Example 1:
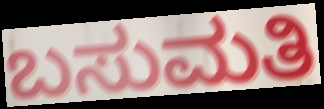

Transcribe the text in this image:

ಬಸುಮತಿ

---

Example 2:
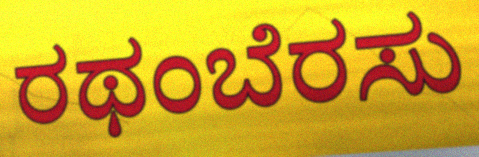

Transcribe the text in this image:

ರಥಂಬೆರಸು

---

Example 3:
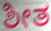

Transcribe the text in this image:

ಶೀತ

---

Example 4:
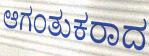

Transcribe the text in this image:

ಆಗಂತುಕರಾದ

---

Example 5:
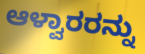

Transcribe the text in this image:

ಆಳ್ವಾರರನ್ನು